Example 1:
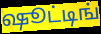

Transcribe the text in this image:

ஷூட்டிங்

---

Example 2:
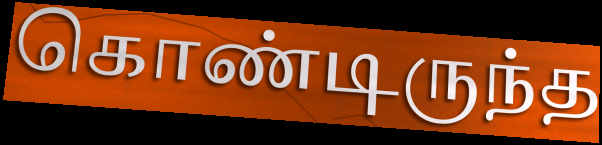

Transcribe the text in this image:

கொண்டிருந்த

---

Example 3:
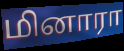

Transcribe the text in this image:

மினாரா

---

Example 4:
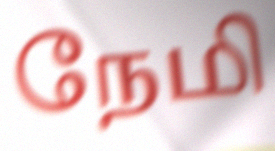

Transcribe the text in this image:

நேமி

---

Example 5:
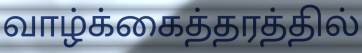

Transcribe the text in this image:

வாழ்க்கைத்தரத்தில்